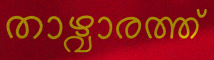
താഴ്വാരത്ത്